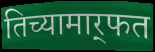
तिच्यामार्फत